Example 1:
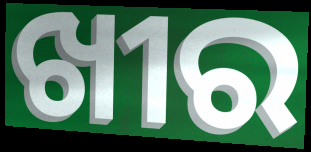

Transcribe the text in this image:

ଖୀର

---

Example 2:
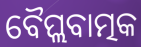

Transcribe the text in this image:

ବୈପ୍ଲବାତ୍ମକ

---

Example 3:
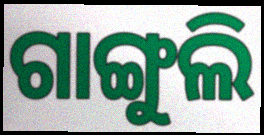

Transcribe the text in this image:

ଗାଙ୍ଗୁଲି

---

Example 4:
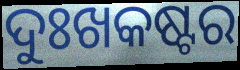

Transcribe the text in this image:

ଦୁଃଖକଷ୍ଟର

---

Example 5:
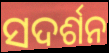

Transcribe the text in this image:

ସଦର୍ଶନ